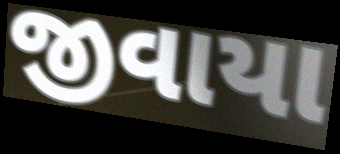
જીવાયા